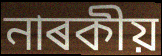
নাৰকীয়